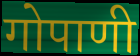
गोपाणी